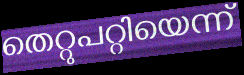
തെറ്റുപറ്റിയെന്ന്